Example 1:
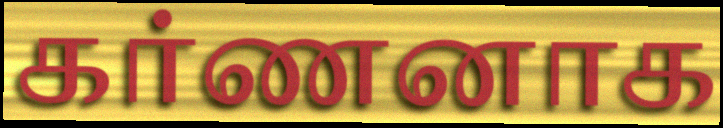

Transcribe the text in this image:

கர்ணனாக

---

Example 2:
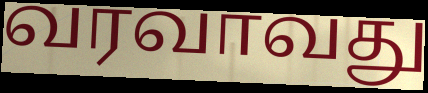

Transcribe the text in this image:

வரவாவது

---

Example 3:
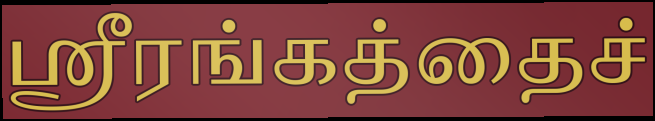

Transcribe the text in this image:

ஸ்ரீரங்கத்தைச்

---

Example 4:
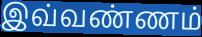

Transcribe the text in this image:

இவ்வண்ணம்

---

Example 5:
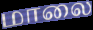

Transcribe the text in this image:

மாலை